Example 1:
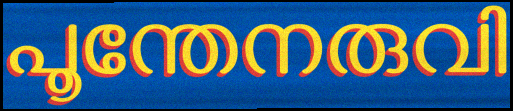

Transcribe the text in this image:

പൂന്തേനരുവി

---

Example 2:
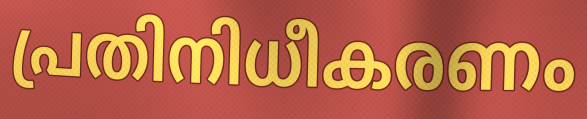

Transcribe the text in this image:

പ്രതിനിധീകരണം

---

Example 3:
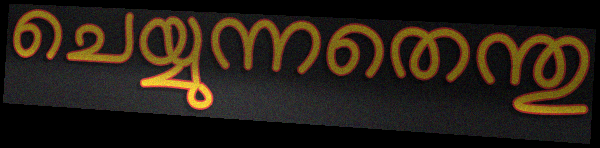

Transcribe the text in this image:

ചെയ്യുന്നതെന്തു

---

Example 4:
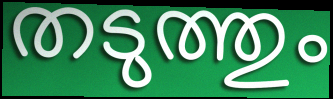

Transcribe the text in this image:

തടുത്തും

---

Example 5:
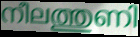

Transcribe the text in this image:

നീലത്തുണി